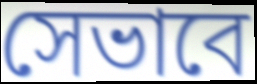
সেভাবে